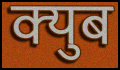
क्युब